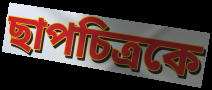
ছাপচিত্রকে